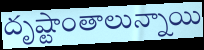
దృష్టాంతాలున్నాయి